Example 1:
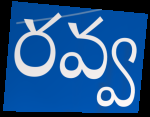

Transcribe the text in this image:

రవ్వ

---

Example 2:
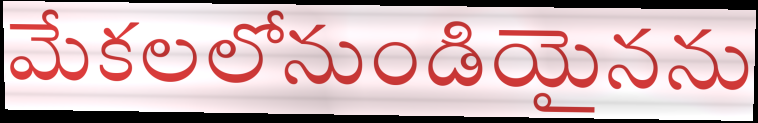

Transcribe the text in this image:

మేకలలోనుండియైనను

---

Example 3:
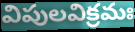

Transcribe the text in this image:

విపులవిక్రమః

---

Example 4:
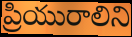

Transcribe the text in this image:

ప్రియురాలిని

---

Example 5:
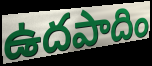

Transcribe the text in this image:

ఉదపాదిం